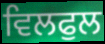
ਵਿਲਫੁਲ